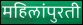
महिलांपुरती